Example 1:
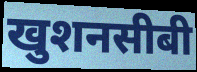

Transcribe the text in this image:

खुशनसीबी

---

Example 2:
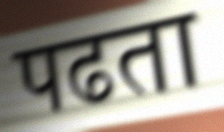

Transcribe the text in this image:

पढता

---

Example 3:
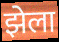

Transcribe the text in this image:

झेला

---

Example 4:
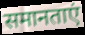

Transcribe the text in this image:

समानताएं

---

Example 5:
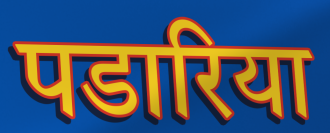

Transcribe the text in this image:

पडारिया